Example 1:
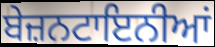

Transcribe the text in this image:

ਬੇਜ਼ਨਟਾਇਨੀਆਂ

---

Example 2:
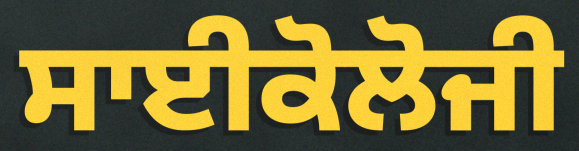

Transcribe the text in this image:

ਸਾਈਕੋਲੋਜੀ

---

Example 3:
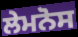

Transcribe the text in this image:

ਲੇਮਨੋਸ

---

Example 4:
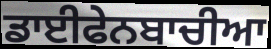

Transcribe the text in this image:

ਡਾਈਫੇਨਬਾਚੀਆ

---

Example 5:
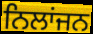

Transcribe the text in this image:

ਨਿਲਾਂਜਨ